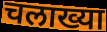
चलाख्या